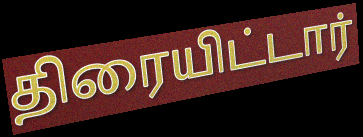
திரையிட்டார்